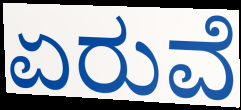
ಏರುವೆ